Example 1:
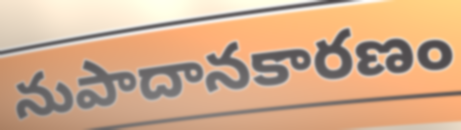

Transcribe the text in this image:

నుపాదానకారణం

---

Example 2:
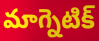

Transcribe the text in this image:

మాగ్నెటిక్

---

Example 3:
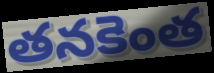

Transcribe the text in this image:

తనకెంత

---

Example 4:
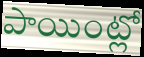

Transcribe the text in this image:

పాయింట్లో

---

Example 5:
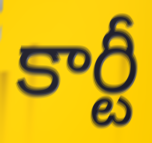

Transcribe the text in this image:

కార్టీ